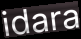
idara